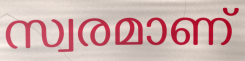
സ്വരമാണ്